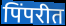
पिंपरीत